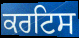
ਕਰਟਿਸ